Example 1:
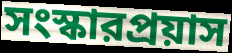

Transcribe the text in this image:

সংস্কারপ্রয়াস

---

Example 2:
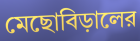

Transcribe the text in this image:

মেছোবিড়ালের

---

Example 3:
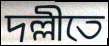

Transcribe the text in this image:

দল্লীতে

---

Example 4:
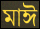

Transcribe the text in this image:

মাঈ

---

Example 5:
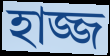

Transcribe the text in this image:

হাজ্জ